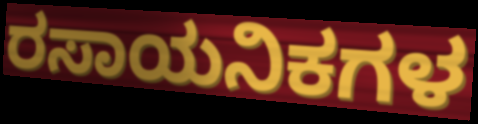
ರಸಾಯನಿಕಗಳ